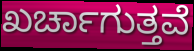
ಖರ್ಚಾಗುತ್ತವೆ